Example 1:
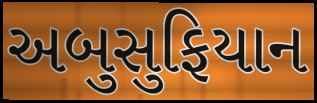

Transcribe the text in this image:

અબુસુફિયાન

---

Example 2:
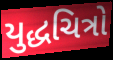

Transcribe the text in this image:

યુદ્ધચિત્રો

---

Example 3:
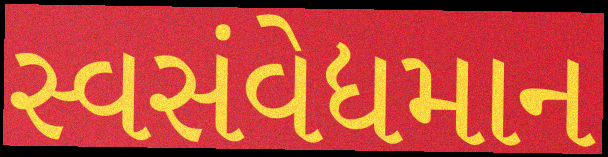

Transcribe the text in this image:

સ્વસંવેદ્યમાન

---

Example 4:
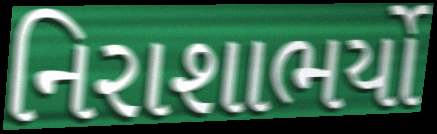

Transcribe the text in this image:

નિરાશાભર્યો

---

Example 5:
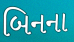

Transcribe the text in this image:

બિનના